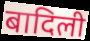
बादिली